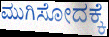
ಮುಗಿಸೋದಕ್ಕೆ